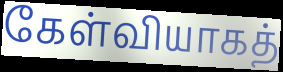
கேள்வியாகத்